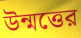
উন্মত্তের